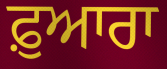
ਫ਼ੁਆਰਾ